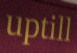
uptill